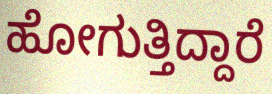
ಹೋಗುತ್ತಿದ್ದಾರೆ